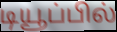
டியூப்பில்